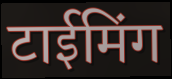
टाईमिंग